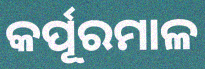
କର୍ପୂରମାଳ